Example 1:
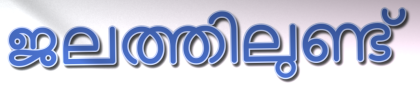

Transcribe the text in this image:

ജലത്തിലുണ്ട്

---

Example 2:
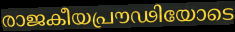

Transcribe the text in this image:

രാജകീയപ്രൗഢിയോടെ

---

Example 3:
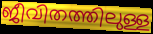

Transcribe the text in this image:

ജീവിതത്തിലുള്ള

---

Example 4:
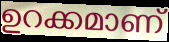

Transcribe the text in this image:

ഉറക്കമാണ്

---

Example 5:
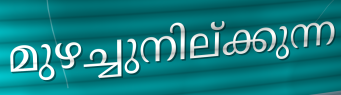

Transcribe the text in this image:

മുഴച്ചുനില്ക്കുന്ന